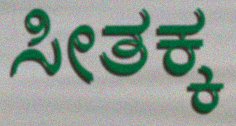
ಸೀತಕ್ಕ